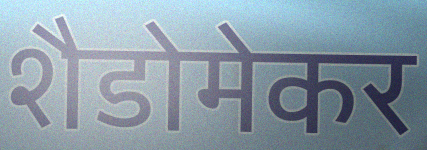
शैडोमेकर